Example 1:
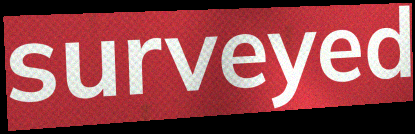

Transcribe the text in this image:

surveyed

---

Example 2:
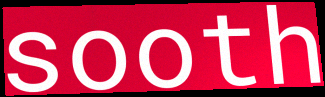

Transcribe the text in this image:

sooth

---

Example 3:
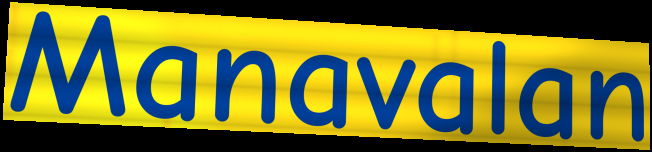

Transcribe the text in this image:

Manavalan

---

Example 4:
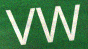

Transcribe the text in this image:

VW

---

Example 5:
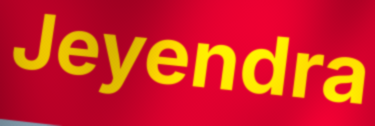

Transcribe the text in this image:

Jeyendra